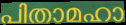
പിതാമഹാ